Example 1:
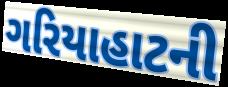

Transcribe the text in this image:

ગરિયાહાટની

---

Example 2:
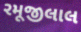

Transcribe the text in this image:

રમૂજીલાલ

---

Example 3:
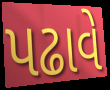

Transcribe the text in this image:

પઢાવે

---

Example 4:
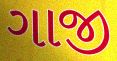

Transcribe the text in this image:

ગાજી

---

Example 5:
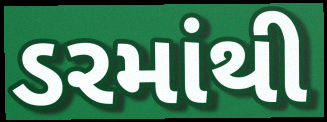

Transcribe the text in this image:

ડરમાંથી